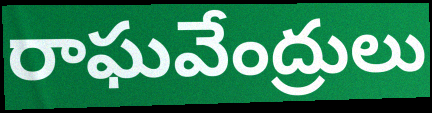
రాఘవేంద్రులు